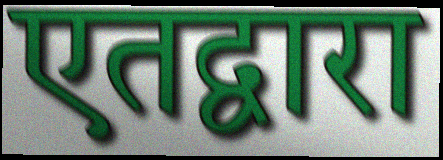
एतद्वारा